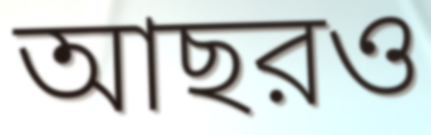
আছরও